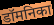
डॉमनिका